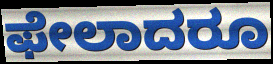
ಫೇಲಾದರೂ